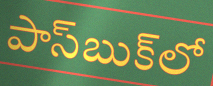
పాస్‌బుక్‌లో